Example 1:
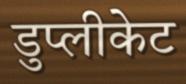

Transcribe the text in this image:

डुप्‍लीकेट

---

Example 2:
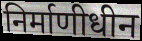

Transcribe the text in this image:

निर्माणीधीन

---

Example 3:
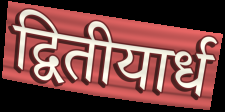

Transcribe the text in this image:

द्वितीयार्ध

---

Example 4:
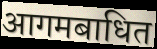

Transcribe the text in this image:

आगमबाधित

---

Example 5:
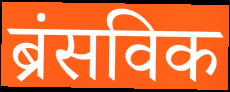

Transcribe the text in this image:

ब्रंसविक